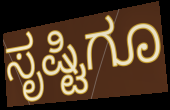
ಸೃಷ್ಟಿಗೂ